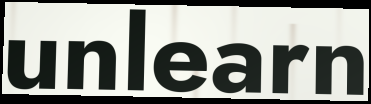
unlearn